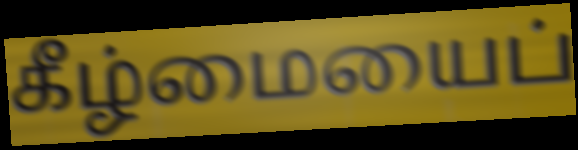
கீழ்மையைப்